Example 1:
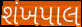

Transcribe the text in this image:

શંખપાલ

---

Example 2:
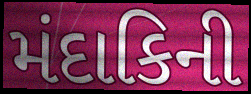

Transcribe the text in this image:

મંદાકિની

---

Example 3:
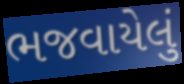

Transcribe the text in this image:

ભજવાયેલું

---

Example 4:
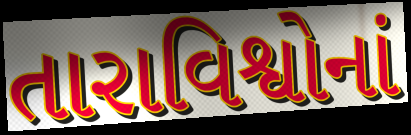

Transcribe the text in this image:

તારાવિશ્વોનાં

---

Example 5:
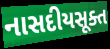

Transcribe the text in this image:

નાસદીયસૂક્ત